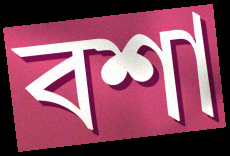
বশা